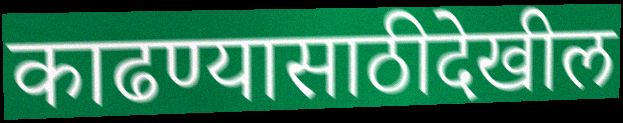
काढण्यासाठीदेखील